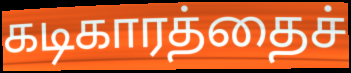
கடிகாரத்தைச்